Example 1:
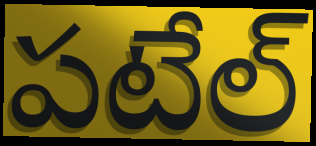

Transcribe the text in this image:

పటేల్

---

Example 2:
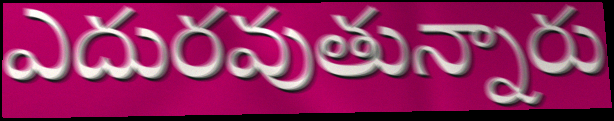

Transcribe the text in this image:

ఎదురవుతున్నారు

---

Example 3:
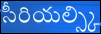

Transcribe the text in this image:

సీరియల్స్కి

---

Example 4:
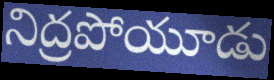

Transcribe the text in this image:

నిద్రపోయూడు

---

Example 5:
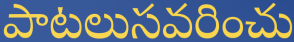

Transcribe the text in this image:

పాటలుసవరించు